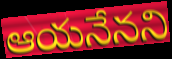
ఆయనేనని